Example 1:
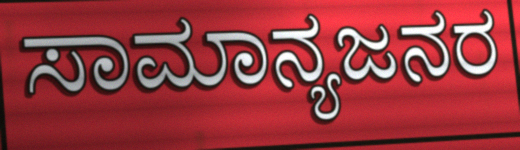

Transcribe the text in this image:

ಸಾಮಾನ್ಯಜನರ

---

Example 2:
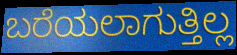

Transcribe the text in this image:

ಬರೆಯಲಾಗುತ್ತಿಲ್ಲ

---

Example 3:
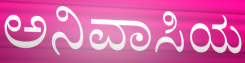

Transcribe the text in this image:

ಅನಿವಾಸಿಯ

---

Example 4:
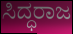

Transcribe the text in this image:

ಸಿದ್ಧರಾಜ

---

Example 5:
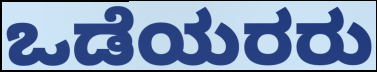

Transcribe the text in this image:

ಒಡೆಯರರು